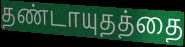
தண்டாயுதத்தை